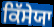
ਕਿੱਸੇਯਾ